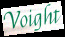
Voight